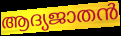
ആദ്യജാതൻ